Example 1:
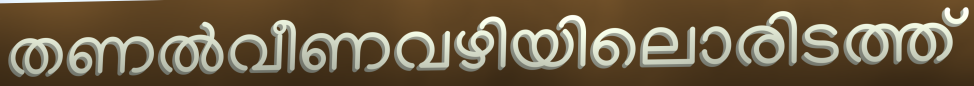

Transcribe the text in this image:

തണൽവീണവഴിയിലൊരിടത്ത്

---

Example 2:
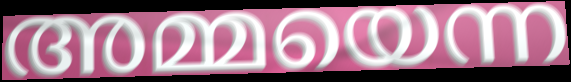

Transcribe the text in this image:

അമ്മയെന്ന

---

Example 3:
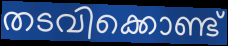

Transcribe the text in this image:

തടവിക്കൊണ്ട്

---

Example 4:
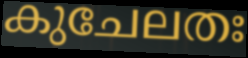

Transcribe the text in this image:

കുചേലതഃ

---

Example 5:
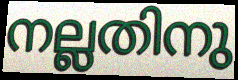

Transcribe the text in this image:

നല്ലതിനു